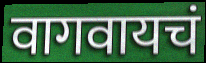
वागवायचं